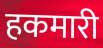
हकमारी